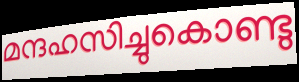
മന്ദഹസിച്ചുകൊണ്ടു